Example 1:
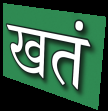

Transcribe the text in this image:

खतं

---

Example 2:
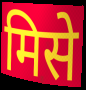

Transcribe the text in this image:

मिसे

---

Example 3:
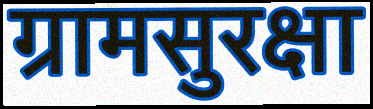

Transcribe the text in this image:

ग्रामसुरक्षा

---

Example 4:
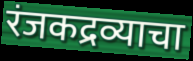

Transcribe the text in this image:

रंजकद्रव्याचा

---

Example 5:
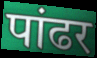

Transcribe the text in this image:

पांढर